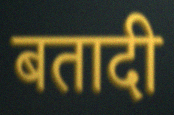
बतादी